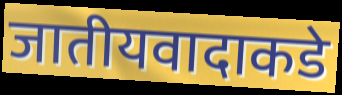
जातीयवादाकडे